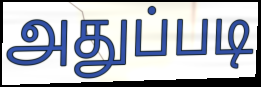
அதுப்படி